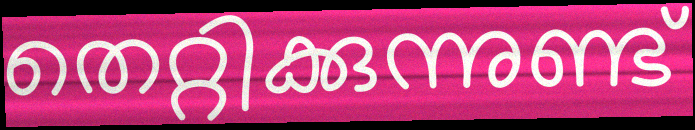
തെറ്റിക്കുന്നുണ്ട്